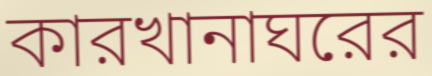
কারখানাঘরের